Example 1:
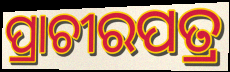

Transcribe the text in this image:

ପ୍ରାଚୀରପତ୍ର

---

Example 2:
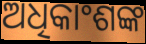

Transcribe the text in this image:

ଅଧିକାଂଶଙ୍କ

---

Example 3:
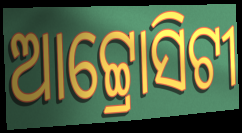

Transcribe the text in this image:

ଆଟ୍ଟ୍ରୋସିଟୀ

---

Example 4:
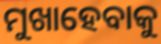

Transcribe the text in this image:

ମୁଖାହେବାକୁ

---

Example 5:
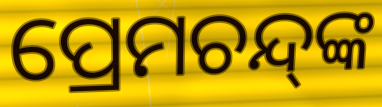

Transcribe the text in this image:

ପ୍ରେମଚନ୍ଦ୍‌ଙ୍କ